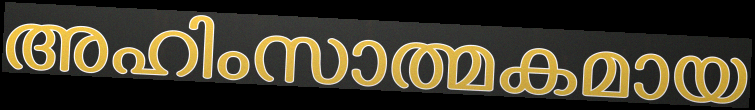
അഹിംസാത്മകമായ